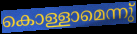
കൊള്ളാമെന്നു്